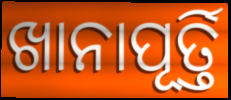
ଖାନାପୂର୍ତ୍ତି